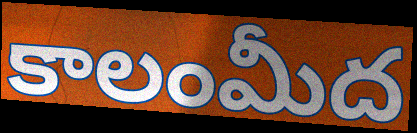
కాలంమీద